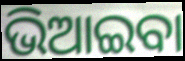
ଭିଆଇବା